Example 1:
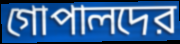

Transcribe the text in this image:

গোপালদের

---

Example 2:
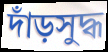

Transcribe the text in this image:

দাঁড়সুদ্ধ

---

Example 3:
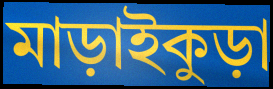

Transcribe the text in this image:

মাড়াইকুড়া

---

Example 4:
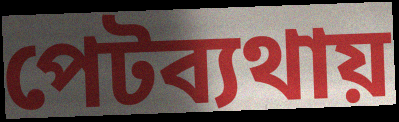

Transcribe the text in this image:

পেটব্যথায়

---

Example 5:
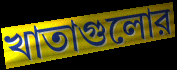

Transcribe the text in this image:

খাতাগুলোর